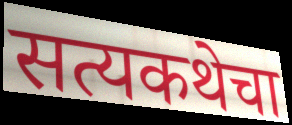
सत्यकथेचा